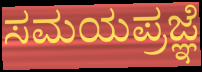
ಸಮಯಪ್ರಜ್ಞೆ